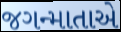
જગન્માતાએ